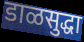
डाळसुद्धा